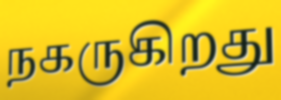
நகருகிறது